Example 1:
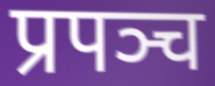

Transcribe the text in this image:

प्रपञ्च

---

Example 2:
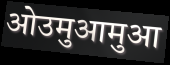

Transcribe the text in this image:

ओउमुआमुआ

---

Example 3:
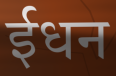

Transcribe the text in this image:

ईधन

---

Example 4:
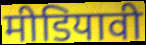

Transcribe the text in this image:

मीडियावी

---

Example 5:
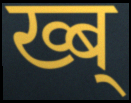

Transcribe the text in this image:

ख्ब्